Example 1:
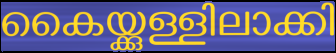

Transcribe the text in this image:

കൈയ്ക്കുള്ളിലാക്കി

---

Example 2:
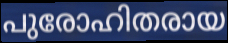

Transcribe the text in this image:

പുരോഹിതരായ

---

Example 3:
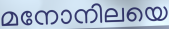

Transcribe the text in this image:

മനോനിലയെ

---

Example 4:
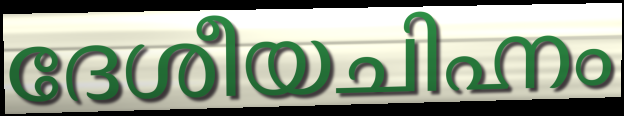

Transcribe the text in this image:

ദേശീയചിഹ്നം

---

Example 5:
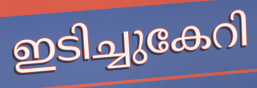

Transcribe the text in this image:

ഇടിച്ചുകേറി